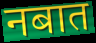
नबात